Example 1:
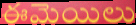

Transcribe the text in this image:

ఈమెయిలు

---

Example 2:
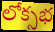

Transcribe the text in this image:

లోక్సభ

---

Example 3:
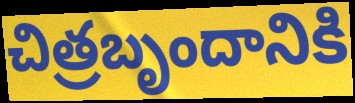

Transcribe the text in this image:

చిత్రబృందానికి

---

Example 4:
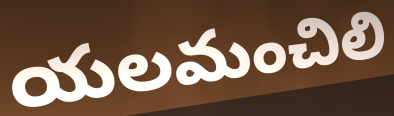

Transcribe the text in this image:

యలమంచిలి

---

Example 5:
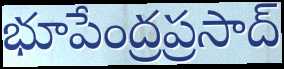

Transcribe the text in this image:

భూపేంద్రప్రసాద్